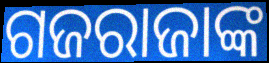
ଗଜରାଜାଙ୍କ